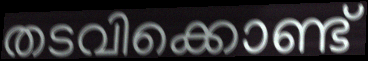
തടവിക്കൊണ്ട്